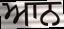
ਆਨ